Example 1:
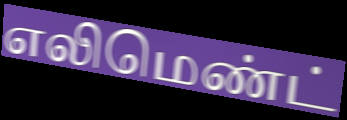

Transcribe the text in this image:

எலிமெண்ட்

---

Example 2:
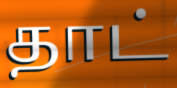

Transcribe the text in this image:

தாட்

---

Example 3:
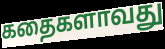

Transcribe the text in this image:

கதைகளாவது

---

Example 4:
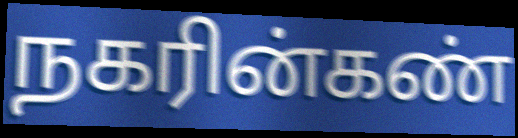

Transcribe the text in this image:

நகரின்கண்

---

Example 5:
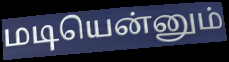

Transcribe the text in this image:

மடியென்னும்